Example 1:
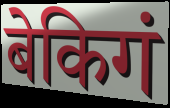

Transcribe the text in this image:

बेकिगं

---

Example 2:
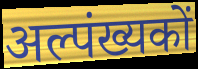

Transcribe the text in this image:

अल्पंख्यकों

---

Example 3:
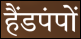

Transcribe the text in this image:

हैंडपंपों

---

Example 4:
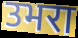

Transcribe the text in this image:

उभरा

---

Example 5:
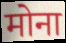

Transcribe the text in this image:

मोना